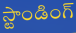
స్టాండింగ్